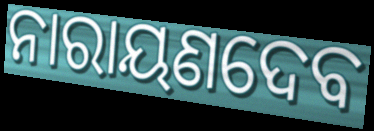
ନାରାୟଣଦେବ